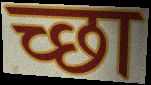
च्छा